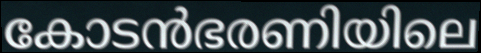
കോടൻഭരണിയിലെ